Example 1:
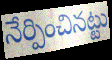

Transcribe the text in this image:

నేర్పించినట్టు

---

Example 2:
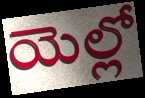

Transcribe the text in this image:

యెల్లో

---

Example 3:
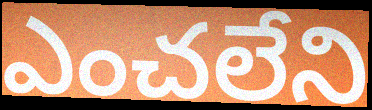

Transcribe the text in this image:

ఎంచలేని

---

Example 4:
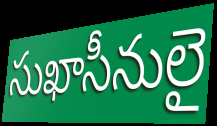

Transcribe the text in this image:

సుఖాసీనులై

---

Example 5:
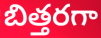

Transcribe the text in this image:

బిత్తరగా